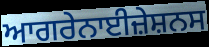
ਆਗਰੇਨਾਈਜ਼ੇਸ਼ਨਸ